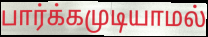
பார்க்கமுடியாமல்